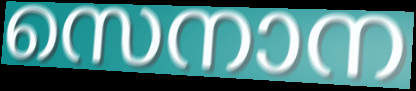
സെനാന